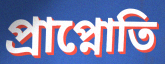
প্রাপ্নোতি